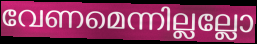
വേണമെന്നില്ലല്ലോ